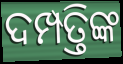
ଦମ୍ପତ୍ତିଙ୍କ